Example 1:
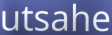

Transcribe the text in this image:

utsahe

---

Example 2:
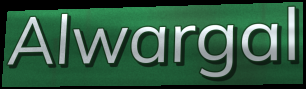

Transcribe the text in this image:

Alwargal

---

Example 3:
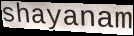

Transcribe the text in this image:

shayanam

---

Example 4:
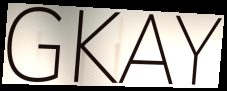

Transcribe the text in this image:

GKAY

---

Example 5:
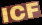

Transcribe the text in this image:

ICF